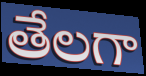
తేలగా